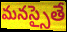
మనస్సైతే